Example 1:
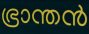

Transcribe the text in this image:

ഭ്രാന്തൻ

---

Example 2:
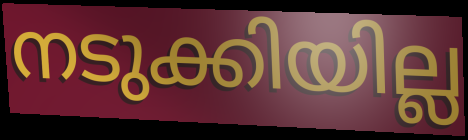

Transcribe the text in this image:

നടുക്കിയില്ല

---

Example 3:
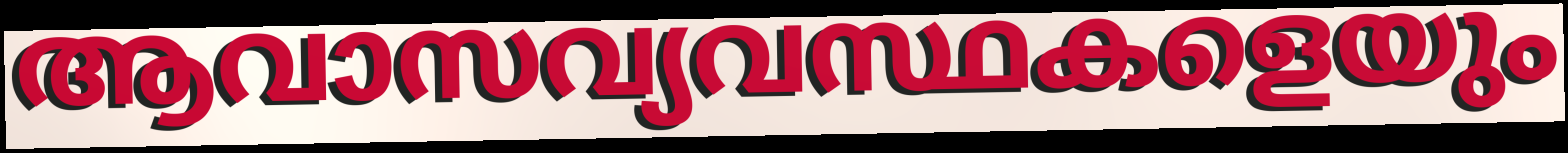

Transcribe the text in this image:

ആവാസവ്യവസ്ഥകളെയും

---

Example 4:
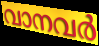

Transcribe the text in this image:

വാനവർ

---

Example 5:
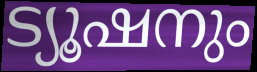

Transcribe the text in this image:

ട്യൂഷനും